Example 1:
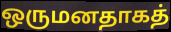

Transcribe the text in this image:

ஒருமனதாகத்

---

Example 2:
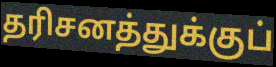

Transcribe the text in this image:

தரிசனத்துக்குப்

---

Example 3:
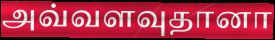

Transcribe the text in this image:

அவ்வளவுதானா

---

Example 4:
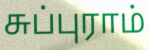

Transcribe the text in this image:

சுப்புராம்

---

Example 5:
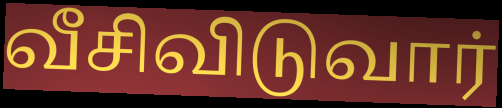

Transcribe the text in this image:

வீசிவிடுவார்